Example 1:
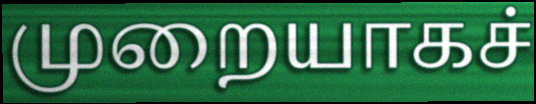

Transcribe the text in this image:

முறையாகச்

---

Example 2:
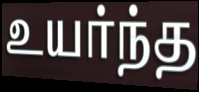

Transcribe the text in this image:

உயர்ந்த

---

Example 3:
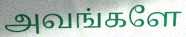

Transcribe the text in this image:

அவங்களே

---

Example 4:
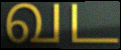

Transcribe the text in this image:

வட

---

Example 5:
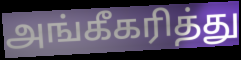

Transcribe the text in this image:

அங்கீகரித்து